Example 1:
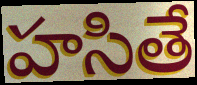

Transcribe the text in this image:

హసితే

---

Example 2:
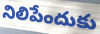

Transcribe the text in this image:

నిలిపేందుకు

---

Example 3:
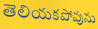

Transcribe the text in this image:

తెలియకపోవును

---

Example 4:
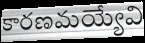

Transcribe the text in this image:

కారణమయ్యేవి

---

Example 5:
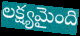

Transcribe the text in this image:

లక్ష్యమైంది